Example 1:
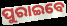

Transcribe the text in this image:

ପୁରାଇବେ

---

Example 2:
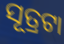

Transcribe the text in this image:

ସୂତ୍ରଟା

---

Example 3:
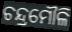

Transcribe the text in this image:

ଚନ୍ଦ୍ରମୌଳି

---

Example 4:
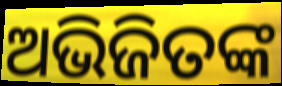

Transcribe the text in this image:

ଅଭିଜିତଙ୍କ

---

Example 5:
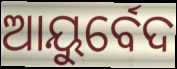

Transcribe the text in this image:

ଆୟୁର୍ବେଦ